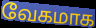
வேகமாக